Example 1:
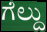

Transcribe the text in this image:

ಗೆಲ್ದು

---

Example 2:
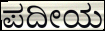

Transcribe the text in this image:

ಪದೀಯ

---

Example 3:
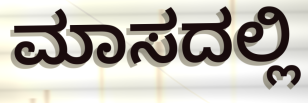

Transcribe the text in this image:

ಮಾಸದಲ್ಲಿ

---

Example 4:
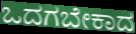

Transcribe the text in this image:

ಒದಗಬೇಕಾದ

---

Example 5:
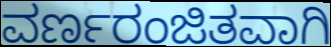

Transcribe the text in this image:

ವರ್ಣರಂಜಿತವಾಗಿ